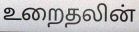
உறைதலின்